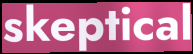
skeptical